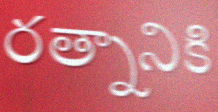
రత్నానికి